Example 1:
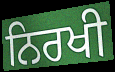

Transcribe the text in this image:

ਨਿਰਖੀ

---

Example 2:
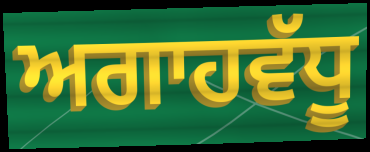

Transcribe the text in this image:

ਅਗਾਹਵੱਧੂ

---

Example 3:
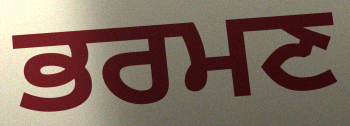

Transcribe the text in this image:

ਭਰਮਣ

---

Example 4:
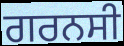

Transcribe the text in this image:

ਗਰਨਸੀ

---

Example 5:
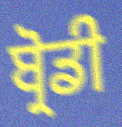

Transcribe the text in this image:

ਬ੍ਰੋਡੀ